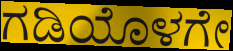
ಗಡಿಯೊಳಗೇ